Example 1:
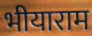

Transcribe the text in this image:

भीयाराम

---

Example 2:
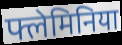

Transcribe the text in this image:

फ्लेमिनिया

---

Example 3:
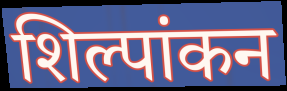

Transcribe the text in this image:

शिल्पांकन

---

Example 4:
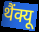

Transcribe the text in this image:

थैंक्यू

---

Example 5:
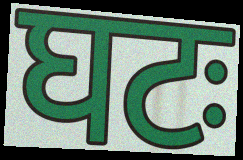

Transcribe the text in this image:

घटः